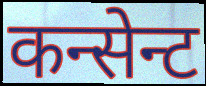
कन्सेन्ट